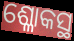
ଶ୍ଳୋକସ୍ଥ